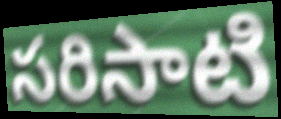
సరిసాటి